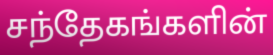
சந்தேகங்களின்